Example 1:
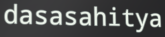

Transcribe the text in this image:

dasasahitya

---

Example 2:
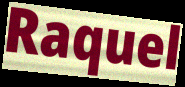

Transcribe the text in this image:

Raquel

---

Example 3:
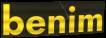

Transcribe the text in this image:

benim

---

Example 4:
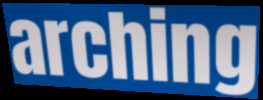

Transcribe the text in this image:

arching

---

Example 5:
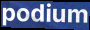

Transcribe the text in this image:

podium